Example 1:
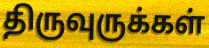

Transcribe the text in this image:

திருவுருக்கள்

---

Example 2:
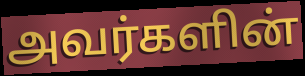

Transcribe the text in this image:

அவர்களின்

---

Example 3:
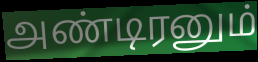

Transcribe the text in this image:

அண்டிரனும்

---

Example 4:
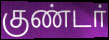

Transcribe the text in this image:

குண்டர்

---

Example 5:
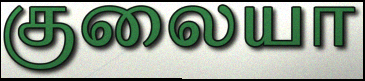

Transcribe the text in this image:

குலையா